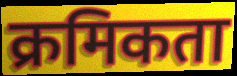
क्रमिकता